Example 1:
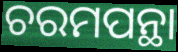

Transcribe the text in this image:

ଚରମପନ୍ଥା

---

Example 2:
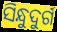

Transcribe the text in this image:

ସିନ୍ଧୁଦୁର୍ଗ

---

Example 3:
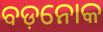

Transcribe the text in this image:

ବଡ଼ନୋକ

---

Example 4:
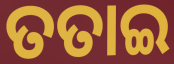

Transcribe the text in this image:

ତତାଇ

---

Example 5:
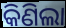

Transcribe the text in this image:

କିଣିଲା